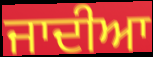
ਜਾਦੀਆ